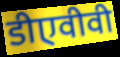
डीएवीवी